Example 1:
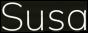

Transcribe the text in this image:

Susa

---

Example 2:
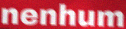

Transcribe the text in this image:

nenhum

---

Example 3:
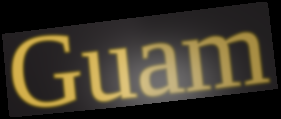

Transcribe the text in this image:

Guam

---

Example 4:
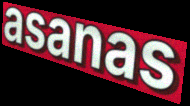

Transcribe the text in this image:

asanas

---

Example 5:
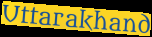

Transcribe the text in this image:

Uttarakhand